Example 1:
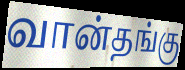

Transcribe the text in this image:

வான்தங்கு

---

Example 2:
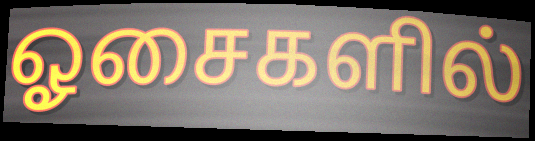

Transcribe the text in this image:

ஓசைகளில்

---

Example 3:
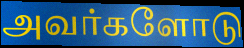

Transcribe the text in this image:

அவர்களோடு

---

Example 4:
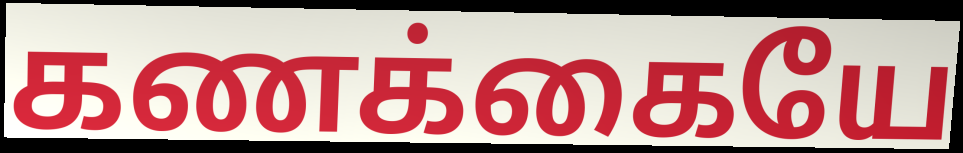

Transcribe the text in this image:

கணக்கையே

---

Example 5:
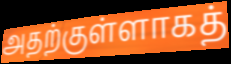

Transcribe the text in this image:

அதற்குள்ளாகத்